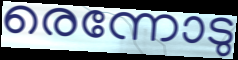
രെന്നോടു